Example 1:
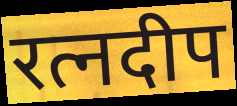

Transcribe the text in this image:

रत्नदीप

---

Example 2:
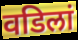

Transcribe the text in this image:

वडिलां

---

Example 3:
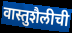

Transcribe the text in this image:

वास्तुशैलीची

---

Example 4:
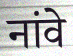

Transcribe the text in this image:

नांवे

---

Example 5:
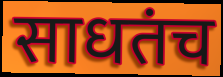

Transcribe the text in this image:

साधतंच